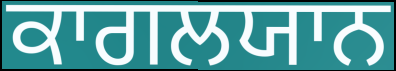
ਕਾਗਲਯਾਨ